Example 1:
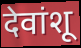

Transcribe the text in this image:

देवांशू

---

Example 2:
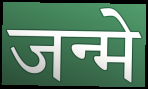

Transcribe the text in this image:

जन्मे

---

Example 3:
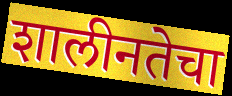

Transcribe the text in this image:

शालीनतेचा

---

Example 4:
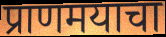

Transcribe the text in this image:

प्राणमयाचा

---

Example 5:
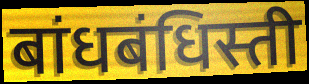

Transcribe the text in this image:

बांधबंधिस्ती